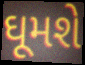
ઘૂમશે